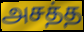
அசத்த